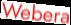
Webera